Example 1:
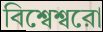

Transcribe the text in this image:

বিশ্বেশ্বরো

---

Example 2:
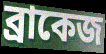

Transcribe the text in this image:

ব্রাকেজ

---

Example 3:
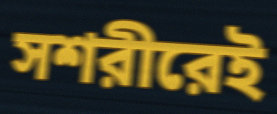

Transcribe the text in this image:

সশরীরেই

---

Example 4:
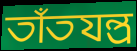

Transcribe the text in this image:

তাঁতযন্ত্র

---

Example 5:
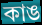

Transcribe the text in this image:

কাঙ